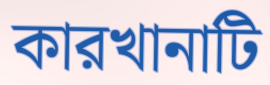
কারখানাটি